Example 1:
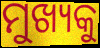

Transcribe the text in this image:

ମୁଖ୍ୟକୁ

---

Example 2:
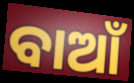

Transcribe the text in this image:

ବାଆଁ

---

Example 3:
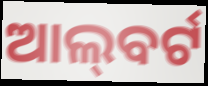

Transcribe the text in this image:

ଆଲ୍‌ବର୍ଟ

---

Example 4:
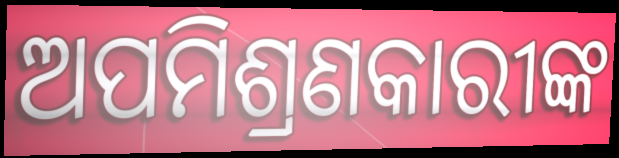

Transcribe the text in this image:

ଅପମିଶ୍ରଣକାରୀଙ୍କ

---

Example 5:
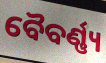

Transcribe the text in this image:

ବୈବର୍ଣ୍ଣ୍ୟ